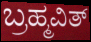
ಬ್ರಹ್ಮವಿತ್